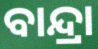
ବାନ୍ଦ୍ରା